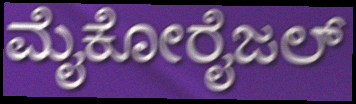
ಮೈಕೋರೈಜಲ್